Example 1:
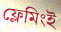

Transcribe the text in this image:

ফ্লেমিংই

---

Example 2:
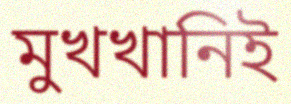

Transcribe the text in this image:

মুখখানিই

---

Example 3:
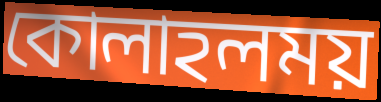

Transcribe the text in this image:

কোলাহলময়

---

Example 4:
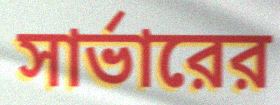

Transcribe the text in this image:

সার্ভারের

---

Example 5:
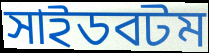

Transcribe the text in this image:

সাইডবটম